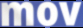
mov